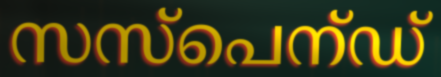
സസ്പെന്ഡ്